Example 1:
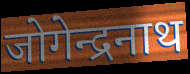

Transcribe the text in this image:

जोगेन्द्रनाथ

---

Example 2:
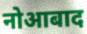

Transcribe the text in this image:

नोआबाद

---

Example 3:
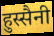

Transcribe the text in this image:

हुस्सैनी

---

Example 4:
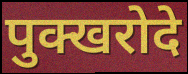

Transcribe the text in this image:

पुक्खरोदे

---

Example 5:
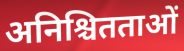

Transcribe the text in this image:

अनिश्चितताओं